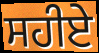
ਸਹੀਏ